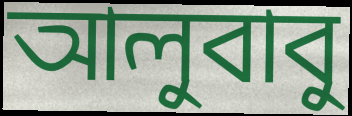
আলুবাবু